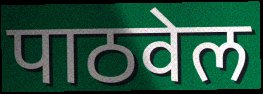
पाठवेल